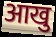
आखु